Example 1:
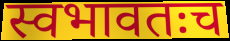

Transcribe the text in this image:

स्वभावतःच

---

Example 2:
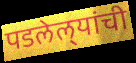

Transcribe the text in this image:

पडलेल्यांची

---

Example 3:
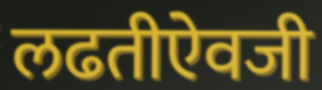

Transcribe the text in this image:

लढतीऐवजी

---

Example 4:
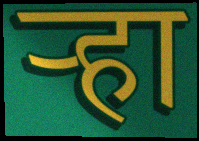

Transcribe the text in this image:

ऱ्हा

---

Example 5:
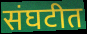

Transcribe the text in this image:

संघटीत